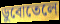
ডুবোতেলে